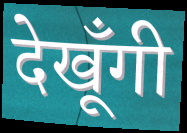
देखूँगी